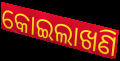
କୋଇଲାଖଣି